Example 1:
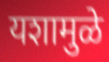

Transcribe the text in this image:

यशामुळे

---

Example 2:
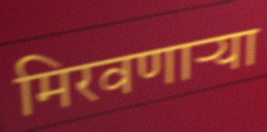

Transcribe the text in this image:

मिरवणाऱ्या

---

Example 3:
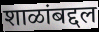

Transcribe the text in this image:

शाळांबद्दल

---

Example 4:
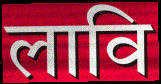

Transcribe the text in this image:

लावि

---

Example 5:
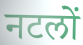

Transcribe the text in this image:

नटलों